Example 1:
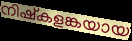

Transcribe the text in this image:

നിഷ്കളങ്കയായ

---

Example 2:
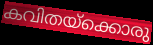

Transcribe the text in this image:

കവിതയ്ക്കൊരു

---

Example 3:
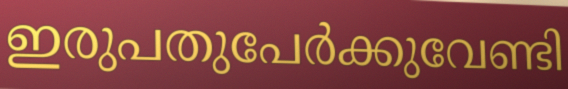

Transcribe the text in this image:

ഇരുപതുപേർക്കുവേണ്ടി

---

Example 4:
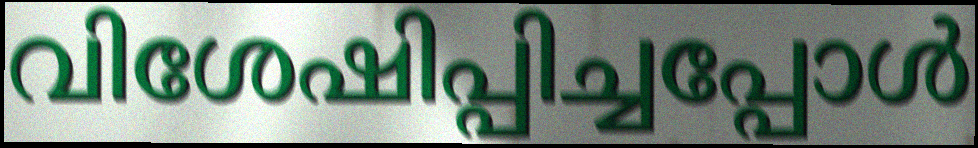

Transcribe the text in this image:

വിശേഷിപ്പിച്ചപ്പോൾ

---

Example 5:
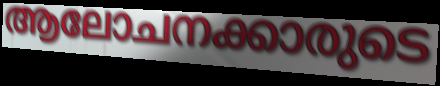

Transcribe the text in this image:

ആലോചനക്കാരുടെ